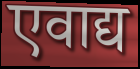
एवाद्य